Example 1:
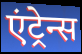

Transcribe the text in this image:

एंट्रेन्स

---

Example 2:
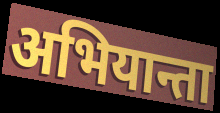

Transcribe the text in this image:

अभियान्ता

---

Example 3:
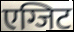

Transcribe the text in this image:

एग्जिट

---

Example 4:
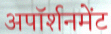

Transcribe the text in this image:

अपॉर्शनमेंट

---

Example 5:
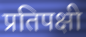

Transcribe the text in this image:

प्रतिपक्षी